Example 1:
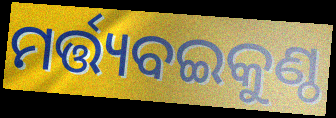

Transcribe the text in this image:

ମର୍ତ୍ତ୍ୟବଇକୁଣ୍ଠ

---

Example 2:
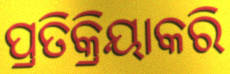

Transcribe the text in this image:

ପ୍ରତିକ୍ରିୟାକରି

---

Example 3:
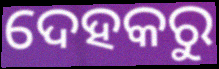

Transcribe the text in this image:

ଦେହକରୁ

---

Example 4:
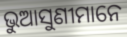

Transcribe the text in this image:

ଭୁଆସୁଣୀମାନେ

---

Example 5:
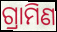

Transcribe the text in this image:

ଗ୍ରାମିଣ